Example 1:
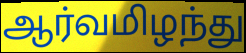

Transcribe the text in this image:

ஆர்வமிழந்து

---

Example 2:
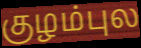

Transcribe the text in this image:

குழம்புல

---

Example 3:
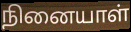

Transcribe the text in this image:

நினையாள்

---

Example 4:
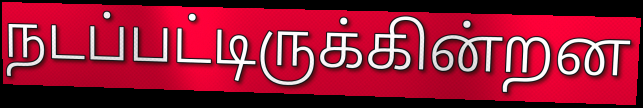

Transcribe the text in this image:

நடப்பட்டிருக்கின்றன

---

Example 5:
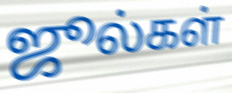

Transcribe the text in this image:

ஜூல்கள்